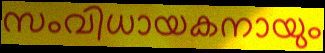
സംവിധായകനായും